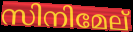
സിനിമേല്